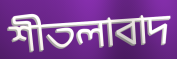
শীতলাবাদ